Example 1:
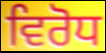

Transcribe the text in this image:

ਵਿਰੋਧ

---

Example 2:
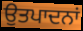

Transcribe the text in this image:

ਉਤਪਾਦਨਾਂ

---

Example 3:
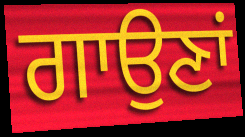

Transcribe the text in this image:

ਗਾਉਣਾਂ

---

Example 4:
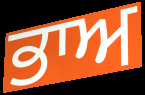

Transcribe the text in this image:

ਭਾਅ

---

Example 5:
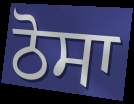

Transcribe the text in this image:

ਠੋਸਾ